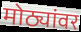
मोठ्यांवर